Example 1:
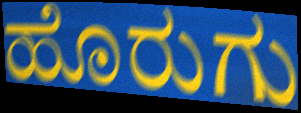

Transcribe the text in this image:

ಹೊರುಗು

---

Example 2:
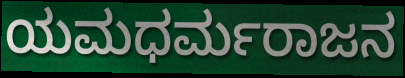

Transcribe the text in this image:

ಯಮಧರ್ಮರಾಜನ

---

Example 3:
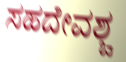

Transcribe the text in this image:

ಸಹದೇವಶ್ಚ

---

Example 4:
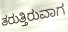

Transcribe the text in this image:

ತರುತ್ತಿರುವಾಗ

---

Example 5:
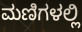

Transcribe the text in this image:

ಮಣಿಗಳಲ್ಲಿ